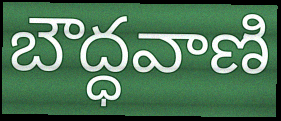
బౌద్ధవాణి